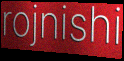
rojnishi